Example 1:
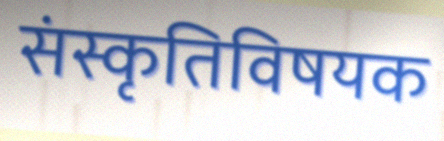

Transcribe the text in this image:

संस्कृतिविषयक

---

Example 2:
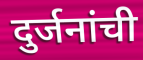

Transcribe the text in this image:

दुर्जनांची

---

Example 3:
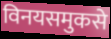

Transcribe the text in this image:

विनयसमुकसे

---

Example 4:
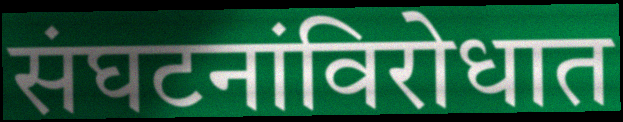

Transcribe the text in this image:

संघटनांविरोधात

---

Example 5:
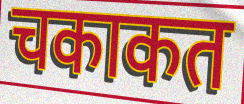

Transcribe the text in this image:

चकाकत